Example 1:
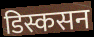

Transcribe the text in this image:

डिस्कसन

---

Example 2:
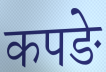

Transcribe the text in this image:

कपङे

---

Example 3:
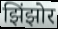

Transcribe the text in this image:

झिंझोर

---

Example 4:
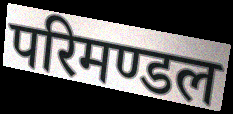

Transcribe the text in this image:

परिमण्डल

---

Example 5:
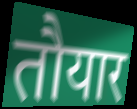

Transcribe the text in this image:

तौयार